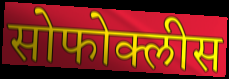
सोफोक्लीस